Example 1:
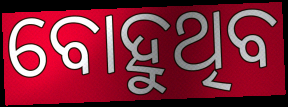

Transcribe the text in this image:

ବୋହୁଥିବ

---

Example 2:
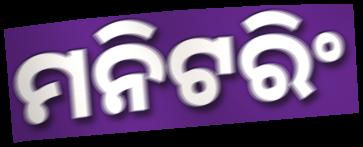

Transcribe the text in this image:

ମନିଟରିଂ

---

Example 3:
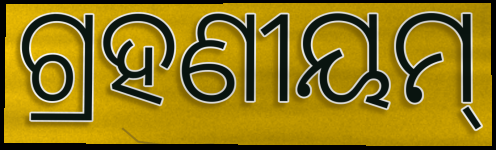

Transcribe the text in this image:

ଗ୍ରହଣୀୟମ୍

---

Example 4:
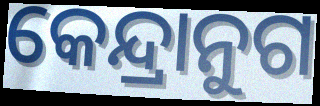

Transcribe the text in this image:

କେନ୍ଦ୍ରାନୁଗ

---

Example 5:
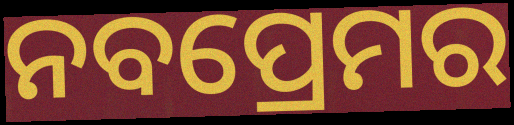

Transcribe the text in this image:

ନବପ୍ରେମର